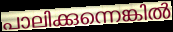
പാലിക്കുന്നെങ്കിൽ